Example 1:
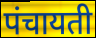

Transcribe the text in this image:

पंचायती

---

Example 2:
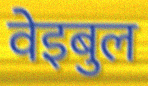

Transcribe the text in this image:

वेइबुल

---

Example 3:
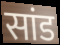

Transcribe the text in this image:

सांड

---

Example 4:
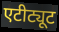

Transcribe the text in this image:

एटीट्यूट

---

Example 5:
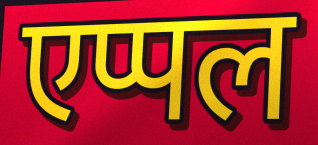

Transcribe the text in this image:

एप्पल